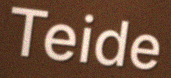
Teide